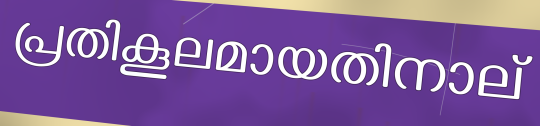
പ്രതികൂലമായതിനാല്